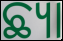
ଛ୍ୟା